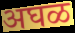
अघळ